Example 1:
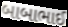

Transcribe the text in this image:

બાબાભાઈ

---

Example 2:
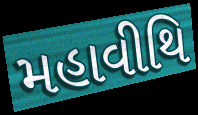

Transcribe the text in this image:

મહાવીથિ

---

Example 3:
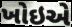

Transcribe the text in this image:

ખોઇએ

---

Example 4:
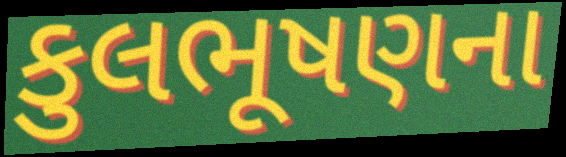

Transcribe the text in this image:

કુલભૂષણના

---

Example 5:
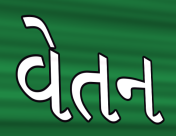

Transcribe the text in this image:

વેતન